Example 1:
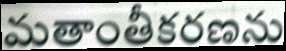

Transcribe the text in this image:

మతాంతీకరణను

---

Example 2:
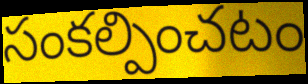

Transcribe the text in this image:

సంకల్పించటం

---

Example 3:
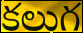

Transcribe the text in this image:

కలుగ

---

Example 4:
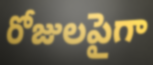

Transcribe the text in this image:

రోజులపైగా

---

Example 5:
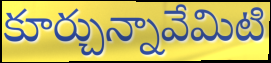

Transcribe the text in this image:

కూర్చున్నావేమిటి